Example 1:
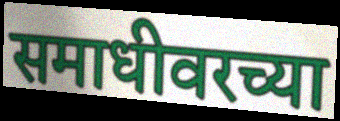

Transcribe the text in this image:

समाधीवरच्या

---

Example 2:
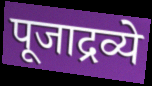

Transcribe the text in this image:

पूजाद्रव्ये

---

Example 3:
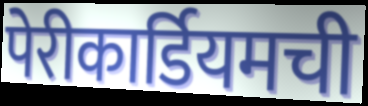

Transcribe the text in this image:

पेरीकार्डियमची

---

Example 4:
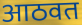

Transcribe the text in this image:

आठवत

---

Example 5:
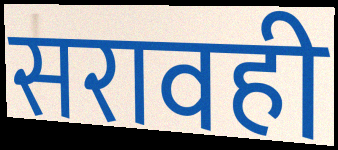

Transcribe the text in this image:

सरावही